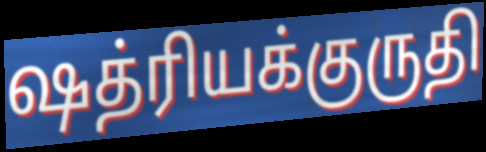
ஷத்ரியக்குருதி